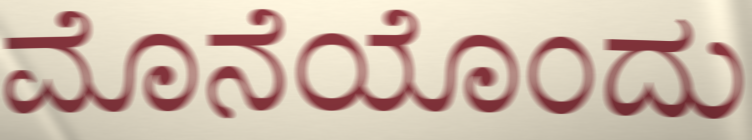
ಮೊನೆಯೊಂದು